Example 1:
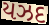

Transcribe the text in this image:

યઝદ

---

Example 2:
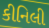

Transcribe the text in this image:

કીનિલી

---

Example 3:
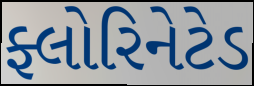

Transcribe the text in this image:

ફ્લોરિનેટેડ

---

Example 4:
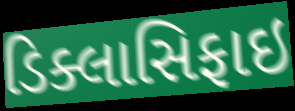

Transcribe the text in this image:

ડિક્લાસિફાઇ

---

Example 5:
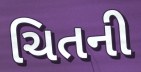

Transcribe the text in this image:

ચિતની